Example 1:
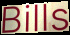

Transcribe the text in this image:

Bills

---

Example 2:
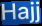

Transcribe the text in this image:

Hajj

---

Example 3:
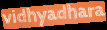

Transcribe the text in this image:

vidhyadhara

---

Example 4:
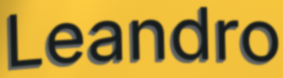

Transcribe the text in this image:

Leandro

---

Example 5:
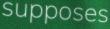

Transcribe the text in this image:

supposes